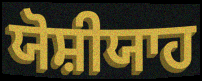
ਯੋਸ਼ੀਯਾਹ